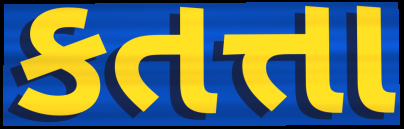
કતત્તા